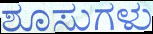
ಶೂಸುಗಳು